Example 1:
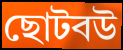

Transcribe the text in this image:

ছোটবউ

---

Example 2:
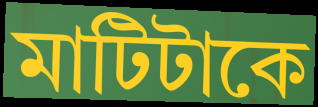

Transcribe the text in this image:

মাটিটাকে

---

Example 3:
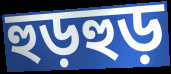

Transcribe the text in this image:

হুড়হুড়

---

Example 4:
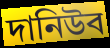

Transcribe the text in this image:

দানিউব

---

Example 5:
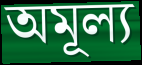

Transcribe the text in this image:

অমূল্য